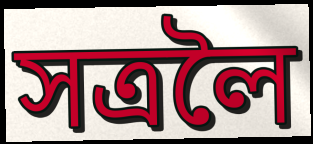
সত্ৰলৈ